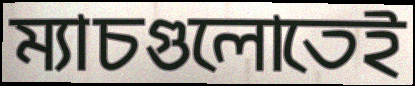
ম্যাচগুলোতেই